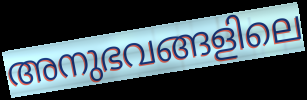
അനുഭവങ്ങളിലെ